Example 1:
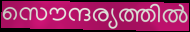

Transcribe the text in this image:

സൌന്ദര്യത്തിൽ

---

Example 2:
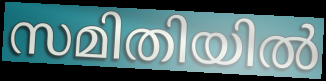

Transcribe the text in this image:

സമിതിയിൽ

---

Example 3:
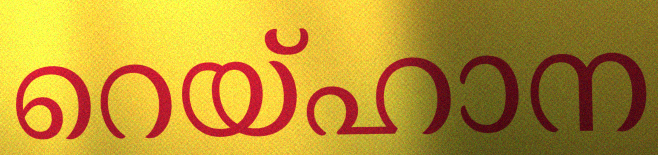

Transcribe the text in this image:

റെയ്ഹാന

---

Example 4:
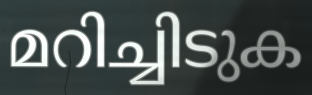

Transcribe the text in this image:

മറിച്ചിടുക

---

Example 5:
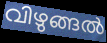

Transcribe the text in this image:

വിഴുങ്ങൽ